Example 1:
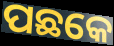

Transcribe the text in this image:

ପଛକେ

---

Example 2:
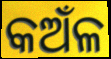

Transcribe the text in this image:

କଅଁଳ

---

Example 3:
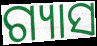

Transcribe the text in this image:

ଗ୍ୟାସ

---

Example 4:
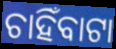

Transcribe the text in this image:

ଚାହିଁବାଟା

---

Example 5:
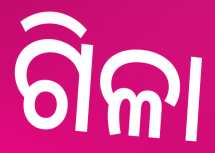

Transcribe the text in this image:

ଗିଳା